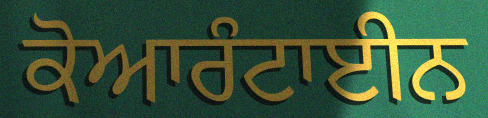
ਕੋਆਰੰਟਾਈਨ